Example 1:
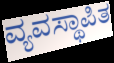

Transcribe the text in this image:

ವ್ಯವಸ್ಥಾಪಿತ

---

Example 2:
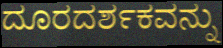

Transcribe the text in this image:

ದೂರದರ್ಶಕವನ್ನು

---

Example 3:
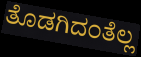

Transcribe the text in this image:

ತೊಡಗಿದಂತೆಲ್ಲ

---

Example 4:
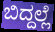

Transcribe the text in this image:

ಬಿದ್ದಲ್ಲೆ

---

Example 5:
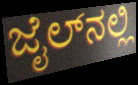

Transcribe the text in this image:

ಜೈಲ್‌ನಲ್ಲಿ